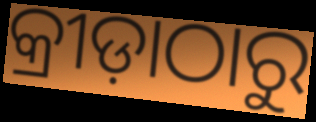
କ୍ରୀଡ଼ାଠାରୁ